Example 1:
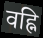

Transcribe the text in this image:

वह्नि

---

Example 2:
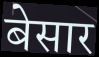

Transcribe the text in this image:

बेसार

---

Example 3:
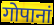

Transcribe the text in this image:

गोपानां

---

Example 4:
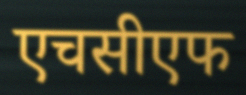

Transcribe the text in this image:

एचसीएफ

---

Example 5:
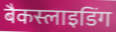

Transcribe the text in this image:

बैकस्लाइडिंग